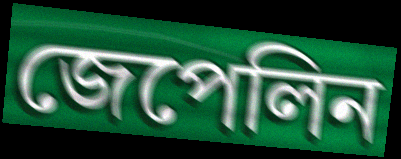
জেপেলিন